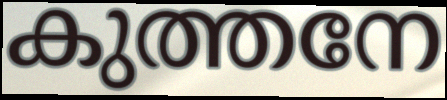
കുത്തനേ